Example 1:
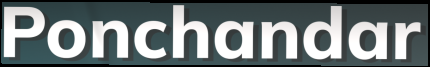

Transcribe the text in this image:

Ponchandar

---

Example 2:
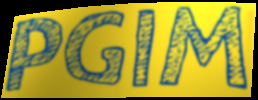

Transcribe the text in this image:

PGIM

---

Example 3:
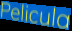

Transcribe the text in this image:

Pelicula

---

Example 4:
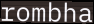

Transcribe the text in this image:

rombha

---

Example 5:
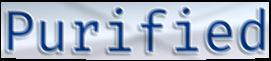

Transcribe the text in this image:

Purified